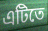
এটিতে